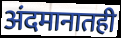
अंदमानातही